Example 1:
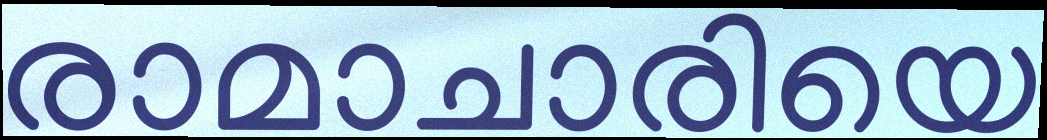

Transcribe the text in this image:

രാമാചാരിയെ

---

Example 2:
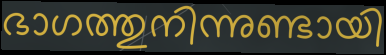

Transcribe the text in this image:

ഭാഗത്തുനിന്നുണ്ടായി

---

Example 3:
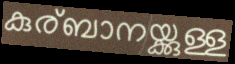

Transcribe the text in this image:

കുര്ബാനയ്ക്കുള്ള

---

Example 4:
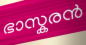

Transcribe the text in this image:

ഭാസ്കരൻ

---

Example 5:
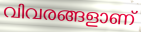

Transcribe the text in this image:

വിവരങ്ങളാണ്